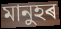
মানুহৰ